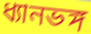
ধ্যানভঙ্গ